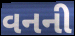
વનની